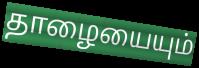
தாழையையும்